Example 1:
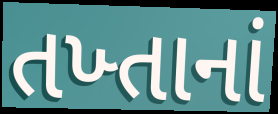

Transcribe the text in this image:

તખ્તાનાં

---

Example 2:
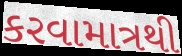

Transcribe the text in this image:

કરવામાત્રથી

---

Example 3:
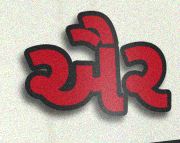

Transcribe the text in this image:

ઐર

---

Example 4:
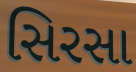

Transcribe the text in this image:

સિરસા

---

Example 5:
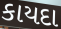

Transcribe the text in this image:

કાયદા